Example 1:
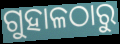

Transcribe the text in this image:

ଗୁହାଳଠାରୁ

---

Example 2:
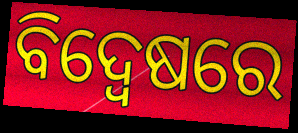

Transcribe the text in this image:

ବିଦ୍ୱେଷରେ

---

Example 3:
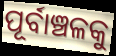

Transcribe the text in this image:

ପୂର୍ବାଞ୍ଚଳକୁ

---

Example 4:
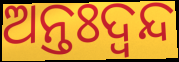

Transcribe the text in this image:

ଅନ୍ତଃଦ୍ବନ୍ଦ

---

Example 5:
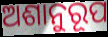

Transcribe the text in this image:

ଅଶାନୁରୂପ